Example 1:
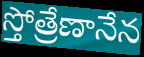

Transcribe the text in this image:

స్తోత్రేణానేన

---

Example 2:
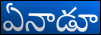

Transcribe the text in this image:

ఏనాడూ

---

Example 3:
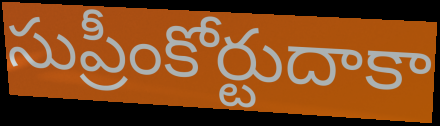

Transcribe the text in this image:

సుప్రీంకోర్టుదాకా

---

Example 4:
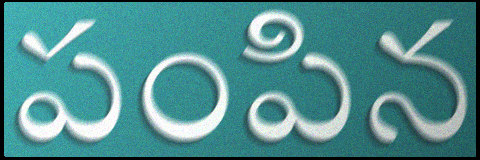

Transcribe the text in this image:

పంపిన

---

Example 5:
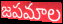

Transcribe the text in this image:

జపమాల